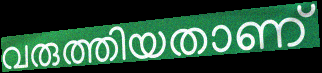
വരുത്തിയതാണ്